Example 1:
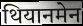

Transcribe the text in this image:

थियानमेन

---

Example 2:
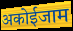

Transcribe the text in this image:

अकोईजाम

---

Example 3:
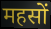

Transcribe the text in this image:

महसों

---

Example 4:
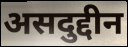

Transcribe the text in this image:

असदुद्दीन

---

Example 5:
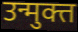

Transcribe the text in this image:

उन्मुक्त